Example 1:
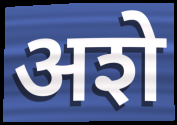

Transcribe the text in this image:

अशे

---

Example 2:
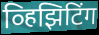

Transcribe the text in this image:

व्हिझिटिंग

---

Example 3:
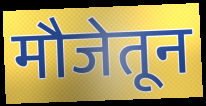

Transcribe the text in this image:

मौजेतून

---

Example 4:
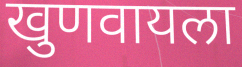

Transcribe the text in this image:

खुणवायला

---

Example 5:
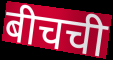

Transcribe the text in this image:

बीचची